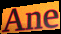
Ane